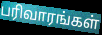
பரிவாரங்கள்